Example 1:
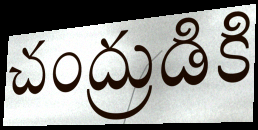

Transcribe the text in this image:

చంద్రుడికి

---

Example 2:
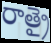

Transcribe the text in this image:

రాత్రై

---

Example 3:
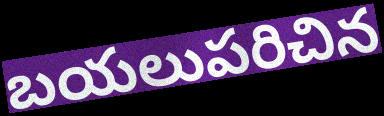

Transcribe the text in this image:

బయలుపరిచిన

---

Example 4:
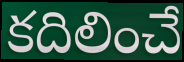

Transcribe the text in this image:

కదిలించే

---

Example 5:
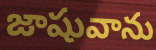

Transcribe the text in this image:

జాషువాను